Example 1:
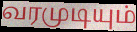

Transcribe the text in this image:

வரமுடியும்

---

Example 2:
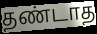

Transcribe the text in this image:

தண்டாத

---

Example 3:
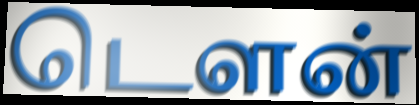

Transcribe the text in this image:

டௌன்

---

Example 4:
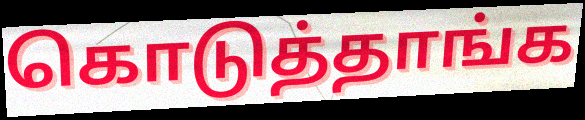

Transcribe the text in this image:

கொடுத்தாங்க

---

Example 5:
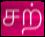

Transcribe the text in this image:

சற்